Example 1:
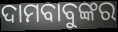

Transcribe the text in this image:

ଦାମବାବୁଙ୍କର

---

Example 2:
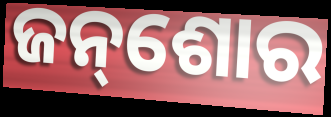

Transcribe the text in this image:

ଜନ୍‌ଶୋର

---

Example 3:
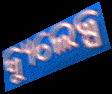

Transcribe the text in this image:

କ୍ୟୁଲେକ୍ସ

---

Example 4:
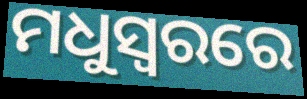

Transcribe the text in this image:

ମଧୁସ୍ୱରରେ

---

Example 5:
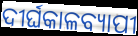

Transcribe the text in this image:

ଦୀର୍ଘକାଳବ୍ୟାପୀ